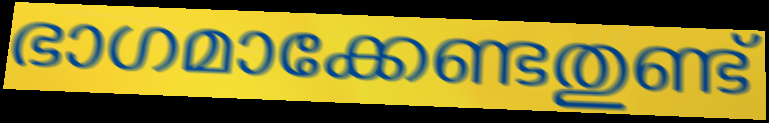
ഭാഗമാക്കേണ്ടതുണ്ട്